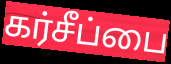
கர்சீப்பை